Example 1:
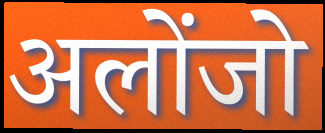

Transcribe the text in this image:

अलोंजो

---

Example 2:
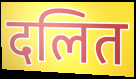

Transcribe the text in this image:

दलित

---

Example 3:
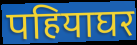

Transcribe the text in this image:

पहियाघर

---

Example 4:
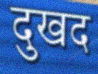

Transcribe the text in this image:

दुखद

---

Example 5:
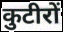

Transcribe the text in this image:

कुटीरों